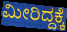
ಮೀರಿದ್ದಕ್ಕೆ